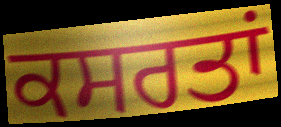
ਕਸਰਤਾਂ